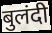
बुलंदी